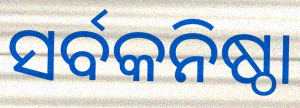
ସର୍ବକନିଷ୍ଠା